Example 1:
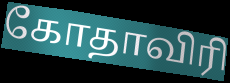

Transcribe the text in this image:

கோதாவிரி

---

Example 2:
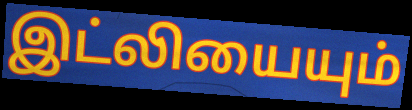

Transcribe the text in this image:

இட்லியையும்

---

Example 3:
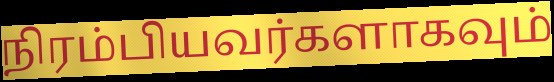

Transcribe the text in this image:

நிரம்பியவர்களாகவும்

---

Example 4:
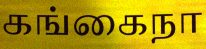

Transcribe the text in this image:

கங்கைநா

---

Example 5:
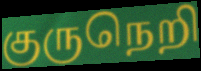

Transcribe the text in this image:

குருநெறி